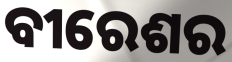
ବୀରେଶର